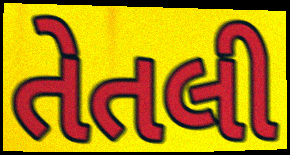
તેતલી